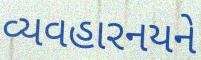
વ્યવહારનયને